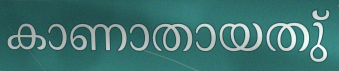
കാണാതായതു്